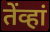
तेंव्हां